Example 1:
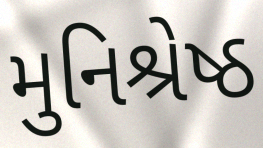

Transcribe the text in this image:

મુનિશ્રેષ્ઠ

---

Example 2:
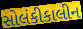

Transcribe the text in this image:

સોલંકીકાલીન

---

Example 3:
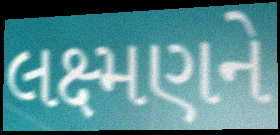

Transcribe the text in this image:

લક્ષ્મણને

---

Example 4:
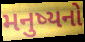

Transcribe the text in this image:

મનુષ્યનો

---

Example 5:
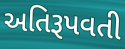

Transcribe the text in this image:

અતિરૂપવતી